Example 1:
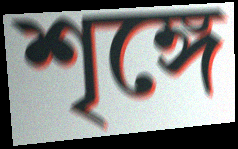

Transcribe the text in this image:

শৃঙ্গে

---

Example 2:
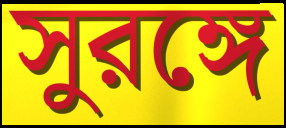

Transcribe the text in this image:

সুরঙ্গে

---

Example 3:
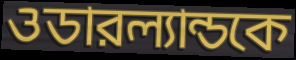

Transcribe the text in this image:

ওডারল্যান্ডকে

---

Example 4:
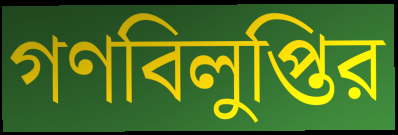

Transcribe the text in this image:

গণবিলুপ্তির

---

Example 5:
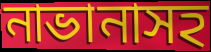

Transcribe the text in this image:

নাভানাসহ